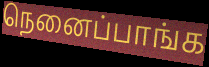
நெனைப்பாங்க